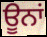
ਊਨਾਂ